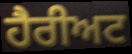
ਹੈਰੀਅਟ